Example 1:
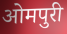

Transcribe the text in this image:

ओमपुरी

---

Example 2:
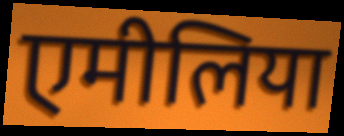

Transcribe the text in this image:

एमीलिया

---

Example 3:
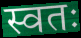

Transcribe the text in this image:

स्वतः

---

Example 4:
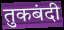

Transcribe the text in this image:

तुकबंदी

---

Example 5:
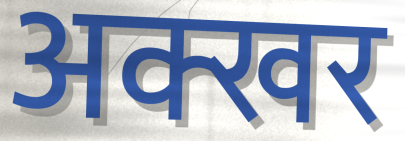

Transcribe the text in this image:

अक्खर